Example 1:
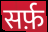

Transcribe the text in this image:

सर्फ़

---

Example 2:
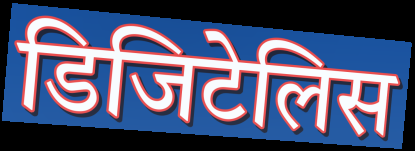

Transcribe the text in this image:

डिजिटेलिस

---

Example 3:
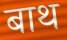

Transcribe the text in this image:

बाथ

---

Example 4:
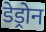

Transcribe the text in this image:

डेड्रोन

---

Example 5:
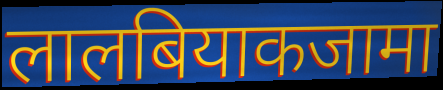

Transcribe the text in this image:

लालबियाकजामा